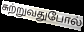
சுற்றுவதுபோல்